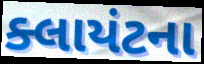
ક્લાયંટના